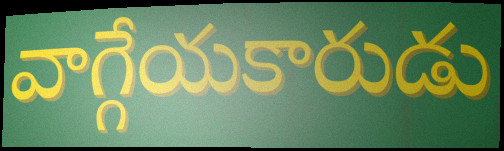
వాగ్గేయకారుడు